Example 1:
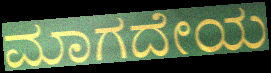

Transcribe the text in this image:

ಮಾಗದೇಯ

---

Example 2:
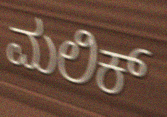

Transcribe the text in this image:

ಮಲಿಕ್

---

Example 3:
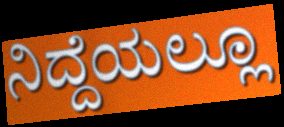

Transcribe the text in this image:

ನಿದ್ದೆಯಲ್ಲೂ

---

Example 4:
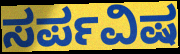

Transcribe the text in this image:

ಸರ್ಪವಿಷ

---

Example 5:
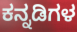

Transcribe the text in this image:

ಕನ್ನಡಿಗಳ